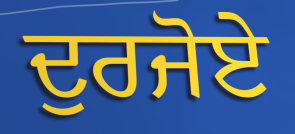
ਦੁਰਜੋਏ